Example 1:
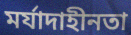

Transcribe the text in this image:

মর্যাদাহীনতা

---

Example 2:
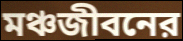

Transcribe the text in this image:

মঞ্চজীবনের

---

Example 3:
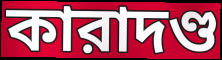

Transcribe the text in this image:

কারাদণ্ড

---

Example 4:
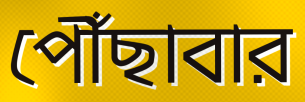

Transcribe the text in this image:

পৌঁছাবার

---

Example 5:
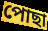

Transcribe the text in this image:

পোছা